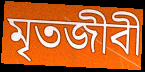
মৃতজীবী